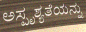
ಅಸ್ಪೃಶ್ಯತೆಯನ್ನು